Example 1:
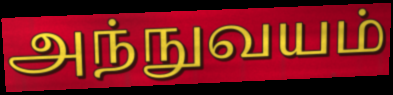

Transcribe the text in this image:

அந்நுவயம்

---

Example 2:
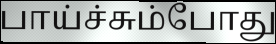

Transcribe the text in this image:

பாய்ச்சும்போது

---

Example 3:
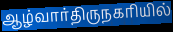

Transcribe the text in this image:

ஆழ்வார்திருநகரியில்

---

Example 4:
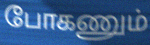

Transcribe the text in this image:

போகணும்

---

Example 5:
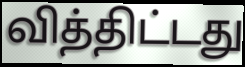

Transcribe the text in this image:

வித்திட்டது